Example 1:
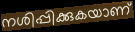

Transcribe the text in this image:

നശിപ്പിക്കുകയാണ്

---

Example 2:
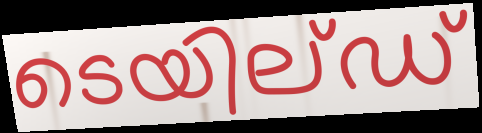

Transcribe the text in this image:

ടെയില്ഡ്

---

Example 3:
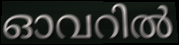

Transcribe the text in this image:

ഓവറിൽ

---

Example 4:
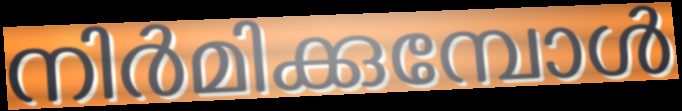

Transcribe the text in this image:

നിർമിക്കുമ്പോൾ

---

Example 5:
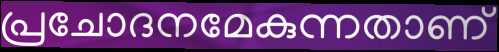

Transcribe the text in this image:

പ്രചോദനമേകുന്നതാണ്